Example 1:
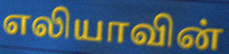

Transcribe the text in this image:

எலியாவின்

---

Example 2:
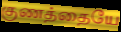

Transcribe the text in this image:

குணத்தையே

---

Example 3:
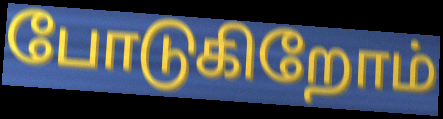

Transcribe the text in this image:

போடுகிறோம்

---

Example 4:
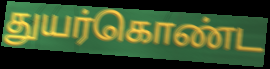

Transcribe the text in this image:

துயர்கொண்ட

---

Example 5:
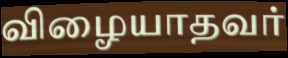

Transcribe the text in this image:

விழையாதவர்